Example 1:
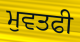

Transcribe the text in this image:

ਮੁਵਤਫੀ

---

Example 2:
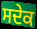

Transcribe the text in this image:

ਸਦੇਕ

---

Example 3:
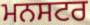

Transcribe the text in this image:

ਮਨਸਟਰ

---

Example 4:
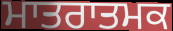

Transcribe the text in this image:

ਮਾਤਰਾਤਮਕ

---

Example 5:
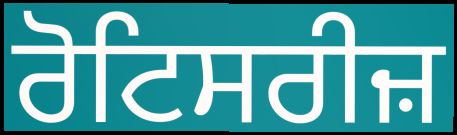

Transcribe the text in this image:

ਰੋਟਿਸਰੀਜ਼